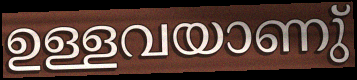
ഉള്ളവയാണു്